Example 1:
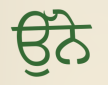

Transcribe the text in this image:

ਉੱਨੇ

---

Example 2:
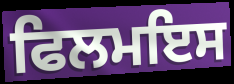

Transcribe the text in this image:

ਫਿਲਮਇਸ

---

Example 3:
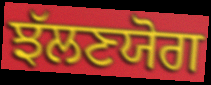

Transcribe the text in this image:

ਝੱਲਣਯੋਗ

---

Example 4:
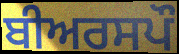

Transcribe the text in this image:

ਬੀਅਰਸਪੌ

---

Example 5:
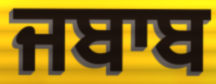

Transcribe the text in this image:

ਜਬਾਬ